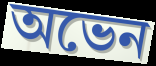
অভেন